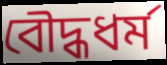
বৌদ্ধধর্ম